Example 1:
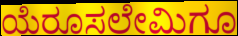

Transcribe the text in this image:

ಯೆರೂಸಲೇಮಿಗೂ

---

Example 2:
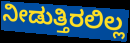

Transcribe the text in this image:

ನೀಡುತ್ತಿರಲಿಲ್ಲ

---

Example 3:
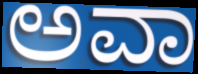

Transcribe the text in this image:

ಅವಾ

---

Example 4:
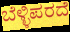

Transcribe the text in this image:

ಬೆಳ್ಳಿಪರದೆ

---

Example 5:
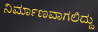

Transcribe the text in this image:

ನಿರ್ಮಾಣವಾಗಲಿದ್ದು